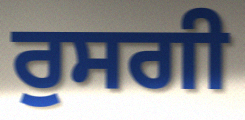
ਰੁਸਗੀ